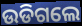
ଉଡିଗଲେ